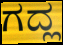
ಗದ್ಲ